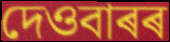
দেওবাৰৰ